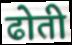
ढोती